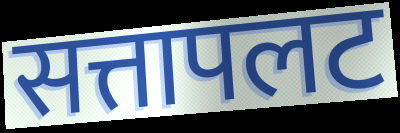
सत्तापलट